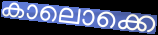
കാലൊക്കെ